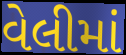
વેલીમાં